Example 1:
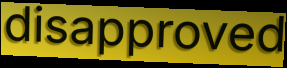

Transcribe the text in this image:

disapproved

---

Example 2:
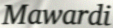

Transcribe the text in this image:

Mawardi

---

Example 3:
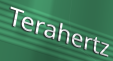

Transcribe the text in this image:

Terahertz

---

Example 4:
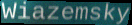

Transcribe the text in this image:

Wiazemsky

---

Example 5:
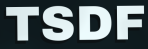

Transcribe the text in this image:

TSDF